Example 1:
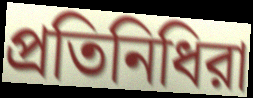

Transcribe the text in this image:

প্রতিনিধিরা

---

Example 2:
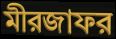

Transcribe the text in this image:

মীরজাফর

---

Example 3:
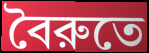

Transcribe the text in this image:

বৈরুতে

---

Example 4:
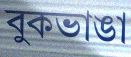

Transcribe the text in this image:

বুকভাঙা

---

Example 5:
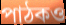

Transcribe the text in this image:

পাঠকও